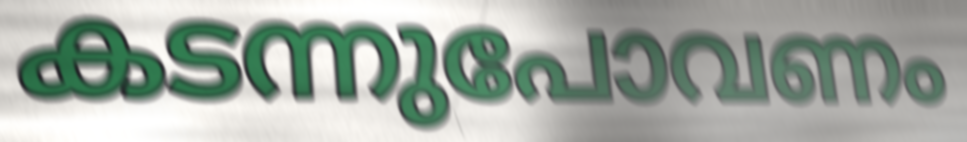
കടന്നുപോവണം